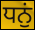
ਧਨੁਂ